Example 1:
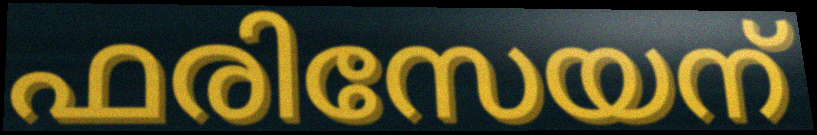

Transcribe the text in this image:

ഫരിസേയന്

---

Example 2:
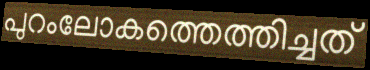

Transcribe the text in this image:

പുറംലോകത്തെത്തിച്ചത്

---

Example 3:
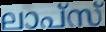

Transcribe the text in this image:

ലാപ്സ്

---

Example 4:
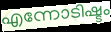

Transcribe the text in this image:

എന്നോടിഷ്ടം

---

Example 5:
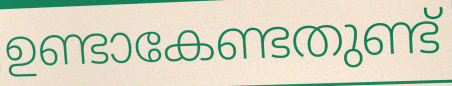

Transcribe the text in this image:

ഉണ്ടാകേണ്ടതുണ്ട്